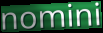
nomini